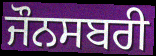
ਜੌਨਸਬਰੀ